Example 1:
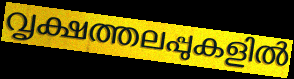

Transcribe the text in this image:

വൃക്ഷത്തലപ്പുകളിൽ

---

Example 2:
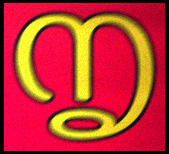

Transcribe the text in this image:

നൃ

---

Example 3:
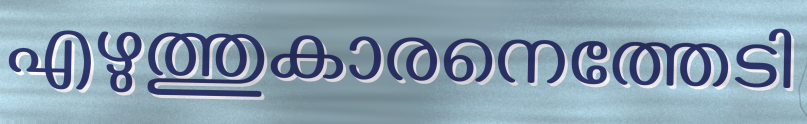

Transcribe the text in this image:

എഴുത്തുകാരനെത്തേടി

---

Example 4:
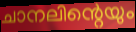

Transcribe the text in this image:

ചാനലിന്റെയും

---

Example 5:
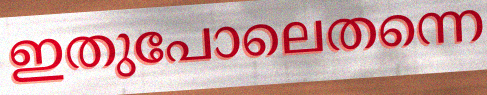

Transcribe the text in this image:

ഇതുപോലെതന്നെ